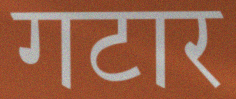
गटार